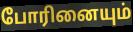
போரினையும்